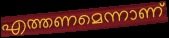
എത്തണമെന്നാണ്